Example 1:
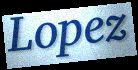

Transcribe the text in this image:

Lopez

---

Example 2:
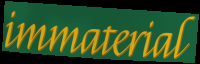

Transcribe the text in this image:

immaterial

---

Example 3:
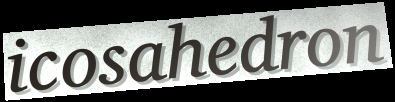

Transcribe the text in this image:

icosahedron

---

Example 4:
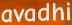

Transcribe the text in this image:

avadhi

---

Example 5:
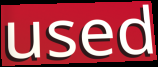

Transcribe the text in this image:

used